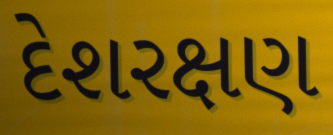
દેશરક્ષણ